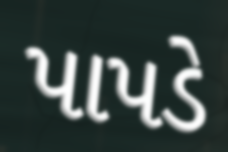
પાપડે